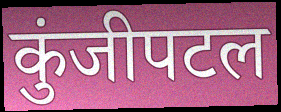
कुंजीपटल